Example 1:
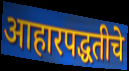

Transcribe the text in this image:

आहारपद्धतीचे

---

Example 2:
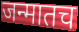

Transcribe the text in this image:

जन्मातच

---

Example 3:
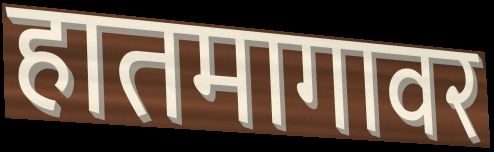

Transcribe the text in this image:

हातमागावर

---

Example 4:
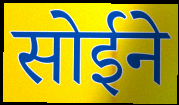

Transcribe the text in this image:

सोईने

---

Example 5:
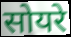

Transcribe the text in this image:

सोयरे